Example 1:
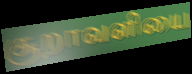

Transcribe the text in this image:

சூறாவளியை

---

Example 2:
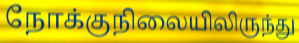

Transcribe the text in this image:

நோக்குநிலையிலிருந்து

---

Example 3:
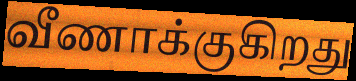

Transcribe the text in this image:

வீணாக்குகிறது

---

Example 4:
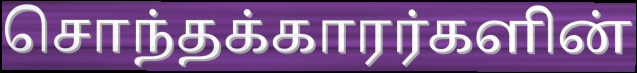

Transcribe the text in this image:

சொந்தக்காரர்களின்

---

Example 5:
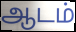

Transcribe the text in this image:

ஆடம்